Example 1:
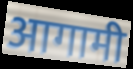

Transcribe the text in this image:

आगामी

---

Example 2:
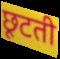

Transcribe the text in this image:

छूटती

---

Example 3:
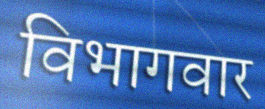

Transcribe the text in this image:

विभागवार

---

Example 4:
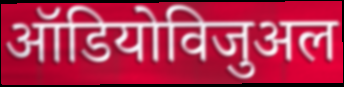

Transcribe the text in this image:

ऑडियोविजुअल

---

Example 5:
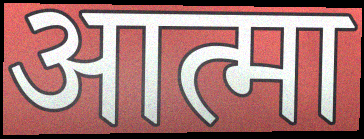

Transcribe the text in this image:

आत्मा